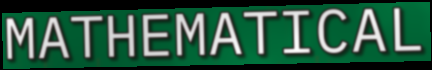
MATHEMATICAL